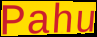
Pahu